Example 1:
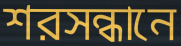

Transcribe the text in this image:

শরসন্ধানে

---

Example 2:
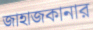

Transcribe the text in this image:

জাহাজকানার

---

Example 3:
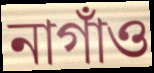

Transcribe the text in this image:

নাগাঁও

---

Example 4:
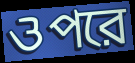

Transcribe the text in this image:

ওপরে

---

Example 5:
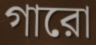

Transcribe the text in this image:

গারো